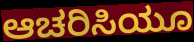
ಆಚರಿಸಿಯೂ